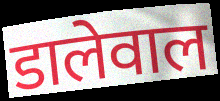
डालेवाल